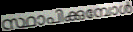
സ്ഥാപിക്കുമ്പോൾ